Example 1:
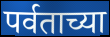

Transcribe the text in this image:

पर्वताच्या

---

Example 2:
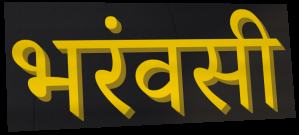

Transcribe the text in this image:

भरंवसी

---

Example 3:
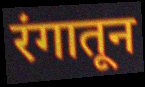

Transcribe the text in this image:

रंगातून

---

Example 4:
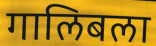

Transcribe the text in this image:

गालिबला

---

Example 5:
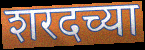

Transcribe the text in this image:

शरदच्या